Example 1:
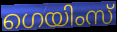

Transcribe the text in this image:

ഗെയിംസ്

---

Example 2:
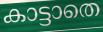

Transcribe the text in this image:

കാട്ടാതെ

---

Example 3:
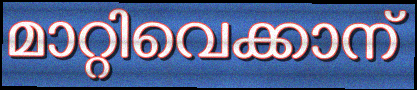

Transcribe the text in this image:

മാറ്റിവെക്കാന്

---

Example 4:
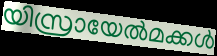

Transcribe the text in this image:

യിസ്രായേൽമക്കൾ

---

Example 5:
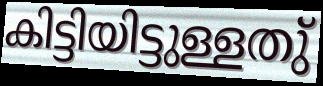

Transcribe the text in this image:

കിട്ടിയിട്ടുള്ളതു്